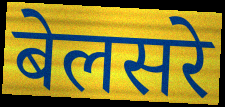
बेलसरे